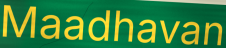
Maadhavan